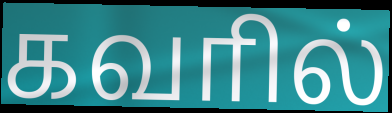
கவரில்